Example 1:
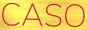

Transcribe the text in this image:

CASO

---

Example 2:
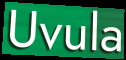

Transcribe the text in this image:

Uvula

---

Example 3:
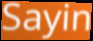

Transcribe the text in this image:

Sayin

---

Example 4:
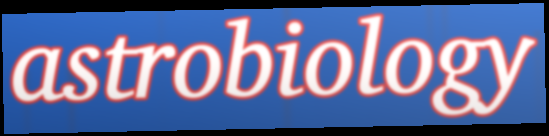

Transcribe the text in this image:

astrobiology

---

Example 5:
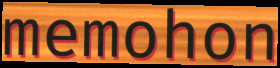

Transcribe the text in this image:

memohon